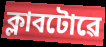
ক্লাবটোৱে